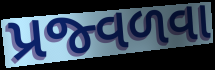
પ્રજ્વળવા